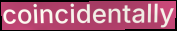
coincidentally